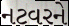
નટવરને